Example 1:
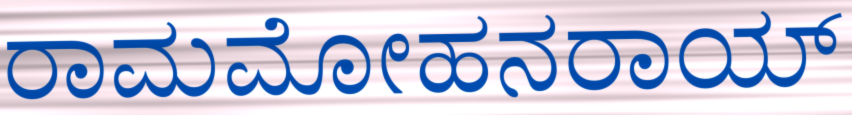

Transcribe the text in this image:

ರಾಮಮೋಹನರಾಯ್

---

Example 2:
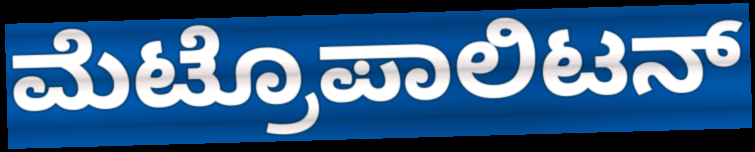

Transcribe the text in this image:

ಮೆಟ್ರೊಪಾಲಿಟನ್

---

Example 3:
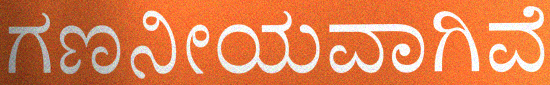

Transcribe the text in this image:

ಗಣನೀಯವಾಗಿವೆ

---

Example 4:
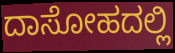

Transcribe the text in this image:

ದಾಸೋಹದಲ್ಲಿ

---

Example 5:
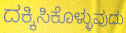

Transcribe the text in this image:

ದಕ್ಕಿಸಿಕೊಳ್ಳುವುದು